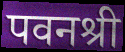
पवनश्री